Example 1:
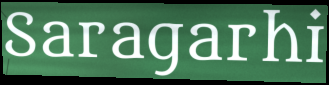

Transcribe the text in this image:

Saragarhi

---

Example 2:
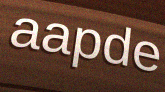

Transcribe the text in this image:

aapde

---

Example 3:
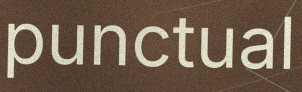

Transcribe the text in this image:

punctual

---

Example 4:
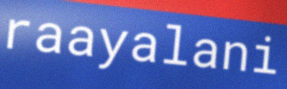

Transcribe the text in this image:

raayalani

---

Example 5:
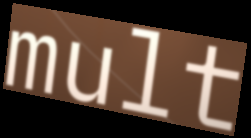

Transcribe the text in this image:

mult